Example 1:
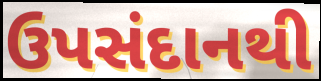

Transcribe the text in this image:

ઉપસંદાનથી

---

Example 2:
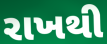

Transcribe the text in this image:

રાખથી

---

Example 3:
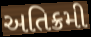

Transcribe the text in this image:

અતિક્રમી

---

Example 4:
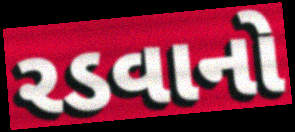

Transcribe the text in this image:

રડવાનો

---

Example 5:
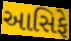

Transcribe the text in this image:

આસિફે